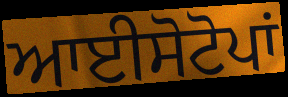
ਆਈਸੋਟੋਪਾਂ